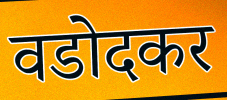
वडोदकर